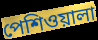
পেশিওয়ালা